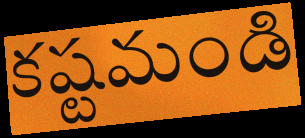
కష్టమండి